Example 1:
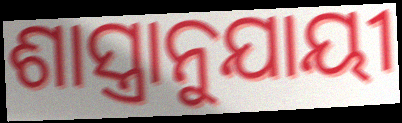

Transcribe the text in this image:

ଶାସ୍ତ୍ରାନୁଯାୟୀ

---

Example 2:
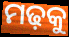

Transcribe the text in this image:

ମଢ଼କୁ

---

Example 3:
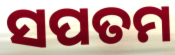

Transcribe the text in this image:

ସପତମ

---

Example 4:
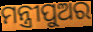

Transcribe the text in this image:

ମନ୍ତ୍ରୀପୁଅର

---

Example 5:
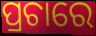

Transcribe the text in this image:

ପ୍ରଚାରେ